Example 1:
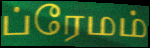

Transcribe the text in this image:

ப்ரேமம்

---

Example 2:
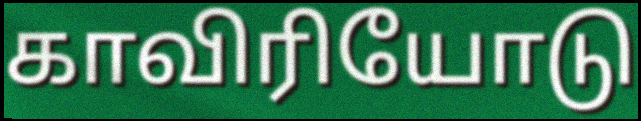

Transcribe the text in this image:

காவிரியோடு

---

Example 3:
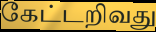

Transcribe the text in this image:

கேட்டறிவது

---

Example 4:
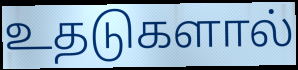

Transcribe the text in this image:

உதடுகளால்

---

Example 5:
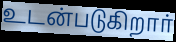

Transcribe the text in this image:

உடன்படுகிறார்